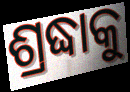
ଶ୍ରଦ୍ଧାକୁ